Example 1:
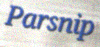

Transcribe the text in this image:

Parsnip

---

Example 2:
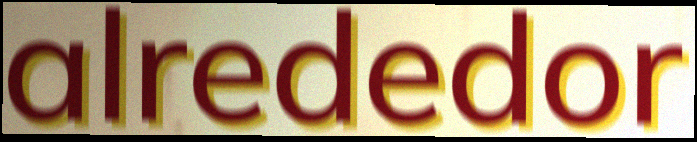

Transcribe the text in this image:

alrededor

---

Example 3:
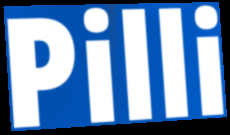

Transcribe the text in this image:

Pilli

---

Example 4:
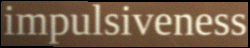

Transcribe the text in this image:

impulsiveness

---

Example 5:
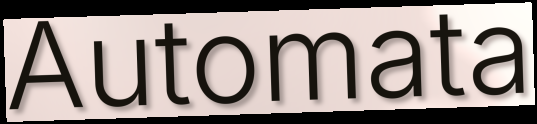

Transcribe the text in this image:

Automata